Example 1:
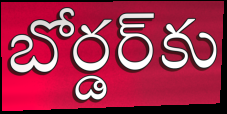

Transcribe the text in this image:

బోర్డర్‌కు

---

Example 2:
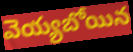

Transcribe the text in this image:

వెయ్యబోయిన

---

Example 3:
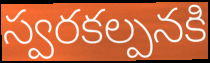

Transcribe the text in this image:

స్వరకల్పనకి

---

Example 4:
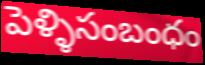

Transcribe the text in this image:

పెళ్ళిసంబంధం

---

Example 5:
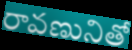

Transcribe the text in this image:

రావణునితో